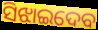
ସିଝାଇଦେବ